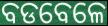
ବଡବେଳେ